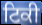
ਟਿਕੀ